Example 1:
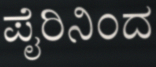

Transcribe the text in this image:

ಪೈರಿನಿಂದ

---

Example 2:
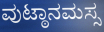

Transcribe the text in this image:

ವುಟ್ಠಾನಮಸ್ಸ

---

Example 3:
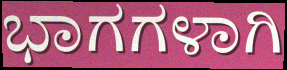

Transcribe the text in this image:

ಭಾಗಗಳಾಗಿ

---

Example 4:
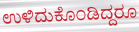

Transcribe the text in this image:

ಉಳಿದುಕೊಂಡಿದ್ದರೂ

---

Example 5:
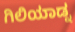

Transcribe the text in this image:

ಗಿಲಿಯಾಡ್ನ